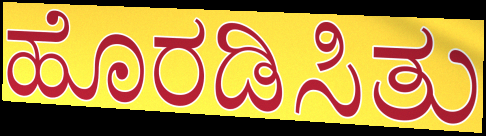
ಹೊರಡಿಸಿತು